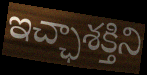
ఇచ్ఛాశక్తిని